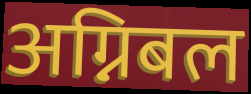
अग्निबल